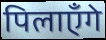
पिलाएँगे